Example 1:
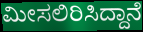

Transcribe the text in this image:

ಮೀಸಲಿರಿಸಿದ್ದಾನೆ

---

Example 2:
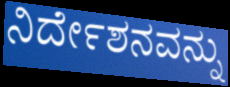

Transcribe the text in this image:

ನಿರ್ದೇಶನವನ್ನು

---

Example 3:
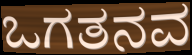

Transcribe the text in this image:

ಒಗತನವ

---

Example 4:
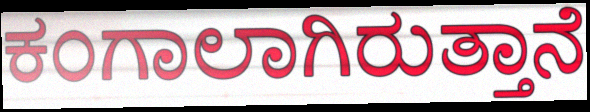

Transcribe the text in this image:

ಕಂಗಾಲಾಗಿರುತ್ತಾನೆ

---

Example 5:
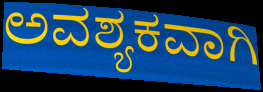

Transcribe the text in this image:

ಅವಶ್ಯಕವಾಗಿ